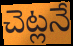
చెట్లనే